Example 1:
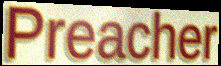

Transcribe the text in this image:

Preacher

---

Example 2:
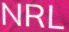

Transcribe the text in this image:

NRL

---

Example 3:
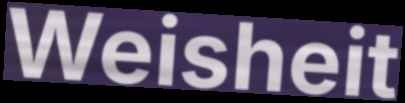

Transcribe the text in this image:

Weisheit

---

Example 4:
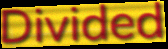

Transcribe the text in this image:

Divided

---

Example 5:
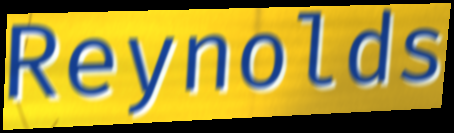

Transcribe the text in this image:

Reynolds